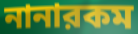
নানারকম